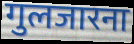
गुलजारना